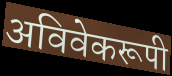
अविवेकरूपी